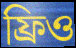
ফ্রিও